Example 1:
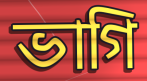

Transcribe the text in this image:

ভাগি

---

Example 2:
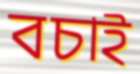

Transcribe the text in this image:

বচাই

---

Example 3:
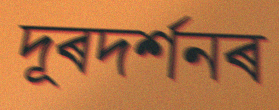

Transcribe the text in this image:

দূৰদৰ্শনৰ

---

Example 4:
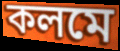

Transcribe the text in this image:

কলমে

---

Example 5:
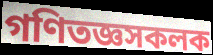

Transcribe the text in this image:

গণিতজ্ঞসকলক